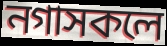
নগাসকলে